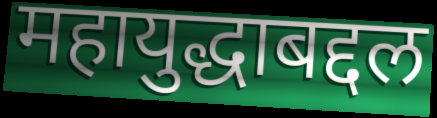
महायुद्धाबद्दल